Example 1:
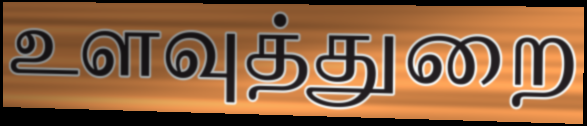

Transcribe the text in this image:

உளவுத்துறை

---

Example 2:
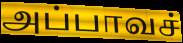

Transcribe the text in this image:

அப்பாவச்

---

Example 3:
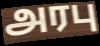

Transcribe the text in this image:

அரபு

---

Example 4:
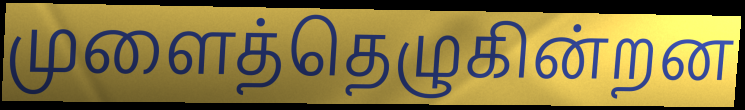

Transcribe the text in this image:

முளைத்தெழுகின்றன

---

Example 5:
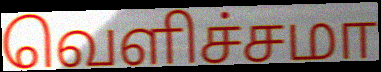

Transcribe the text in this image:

வெளிச்சமா